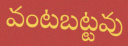
వంటబట్టవు